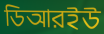
ডিআরইউ